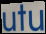
utu